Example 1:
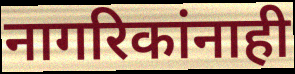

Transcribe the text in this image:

नागरिकांनाही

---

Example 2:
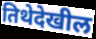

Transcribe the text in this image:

तिथेदेखील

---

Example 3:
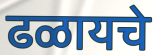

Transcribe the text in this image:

ढळायचे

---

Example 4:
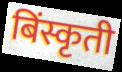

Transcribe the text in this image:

बिंस्कृती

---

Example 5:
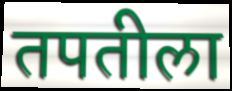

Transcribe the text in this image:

तपतीला